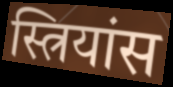
स्त्रियांस